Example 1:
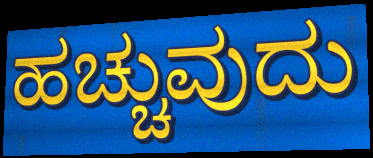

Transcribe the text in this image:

ಹಚ್ಚುವುದು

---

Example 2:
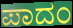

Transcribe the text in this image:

ಪಾದಂ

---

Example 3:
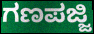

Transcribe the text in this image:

ಗಣಪಜ್ಜಿ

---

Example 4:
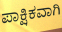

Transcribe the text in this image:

ಪಾಕ್ಷಿಕವಾಗಿ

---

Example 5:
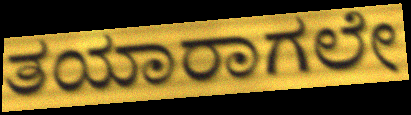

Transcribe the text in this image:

ತಯಾರಾಗಲೇ